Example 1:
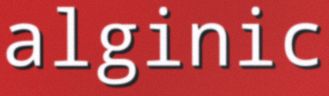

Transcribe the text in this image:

alginic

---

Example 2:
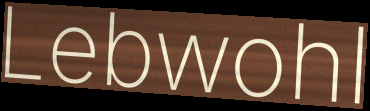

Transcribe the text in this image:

Lebwohl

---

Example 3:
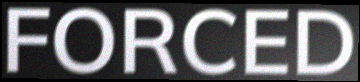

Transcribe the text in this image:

FORCED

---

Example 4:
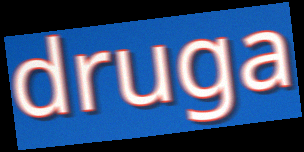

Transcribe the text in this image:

druga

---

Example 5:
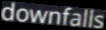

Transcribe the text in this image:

downfalls